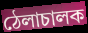
ঠেলাচালক